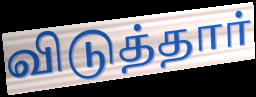
விடுத்தார்